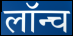
लॉन्‍च